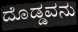
ದೊಡ್ಡವನು